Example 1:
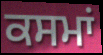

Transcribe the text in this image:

ਕਸਮਾਂ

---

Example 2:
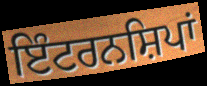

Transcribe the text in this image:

ਇੰਟਰਨਸ਼ਿਪਾਂ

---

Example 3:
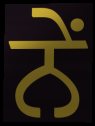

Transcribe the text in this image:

ਨੇਂ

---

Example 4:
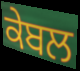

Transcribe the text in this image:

ਕੇਬਲ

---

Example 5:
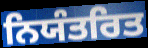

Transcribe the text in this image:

ਨਿਯੰਤਰਿਤ